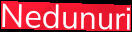
Nedunuri